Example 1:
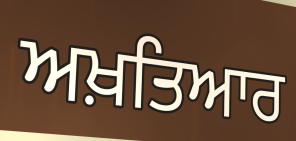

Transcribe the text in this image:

ਅਖ਼ਤਿਆਰ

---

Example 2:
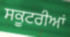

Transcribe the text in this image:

ਸਕੂਟਰੀਆਂ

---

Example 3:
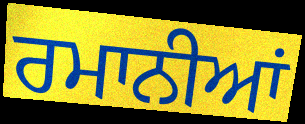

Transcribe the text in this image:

ਰਮਾਨੀਆਂ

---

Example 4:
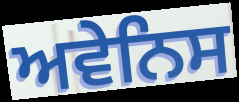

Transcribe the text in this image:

ਅਵੇਨਿਸ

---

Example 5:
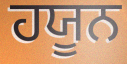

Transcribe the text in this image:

ਹਯੂਨ